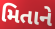
મિતાને